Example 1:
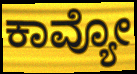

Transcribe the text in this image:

ಕಾವ್ಯೋ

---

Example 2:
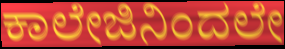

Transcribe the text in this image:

ಕಾಲೇಜಿನಿಂದಲೇ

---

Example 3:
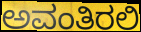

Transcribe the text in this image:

ಅವಂತಿರಲಿ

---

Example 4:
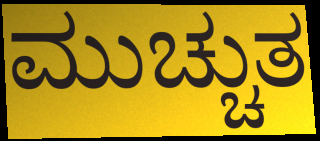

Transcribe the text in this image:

ಮುಚ್ಚುತ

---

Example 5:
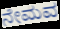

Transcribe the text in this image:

ನೇಮವ